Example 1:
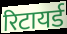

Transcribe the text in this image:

रिटायर्ड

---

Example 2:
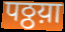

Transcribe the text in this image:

पठ्ठय़ा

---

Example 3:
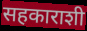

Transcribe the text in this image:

सहकाराशी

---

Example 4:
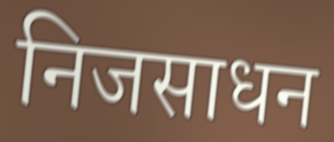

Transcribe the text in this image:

निजसाधन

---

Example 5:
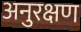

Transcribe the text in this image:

अनुरक्षण